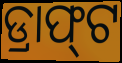
ଡ୍ରାଫ୍‍ଟ